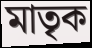
মাতৃক